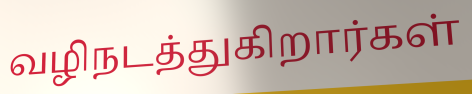
வழிநடத்துகிறார்கள்